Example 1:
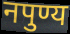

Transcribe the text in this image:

नपुण्य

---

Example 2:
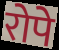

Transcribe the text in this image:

रोपे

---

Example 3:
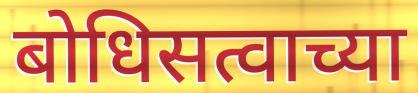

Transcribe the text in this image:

बोधिसत्वाच्या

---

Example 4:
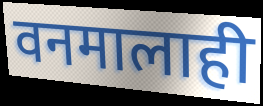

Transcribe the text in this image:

वनमालाही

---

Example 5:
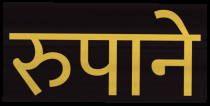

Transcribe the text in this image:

रुपाने